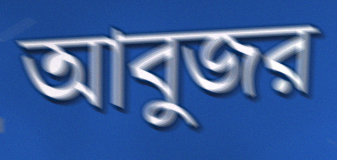
আবুজর